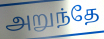
அறுந்தே